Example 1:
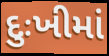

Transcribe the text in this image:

દુઃખીમાં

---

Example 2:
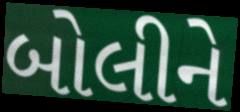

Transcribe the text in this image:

બોલીને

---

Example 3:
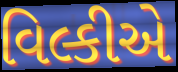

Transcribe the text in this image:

વિલ્કીએ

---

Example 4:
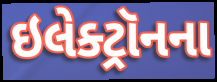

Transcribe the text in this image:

ઇલેક્ટ્રૉનના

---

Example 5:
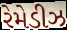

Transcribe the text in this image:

રેમેડીઝ